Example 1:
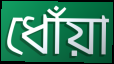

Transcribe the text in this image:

ধোঁয়া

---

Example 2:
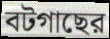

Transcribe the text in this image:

বটগাছের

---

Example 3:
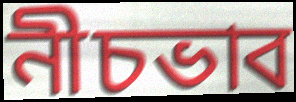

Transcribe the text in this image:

নীচভাব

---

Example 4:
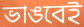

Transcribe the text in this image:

ভাঙবেই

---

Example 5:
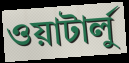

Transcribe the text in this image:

ওয়াটার্লু